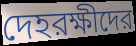
দেহরক্ষীদের